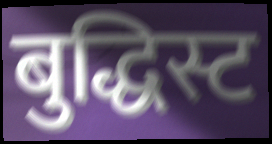
बुद्धिस्ट